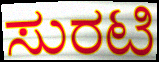
ಸುರಟಿ